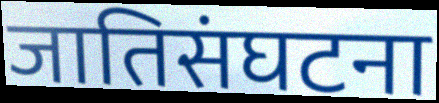
जातिसंघटना